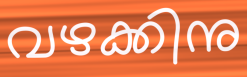
വഴക്കിനു